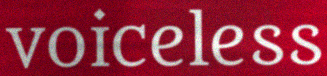
voiceless